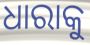
ଧାରାକୁ